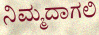
ನಿಮ್ಮದಾಗಲಿ